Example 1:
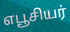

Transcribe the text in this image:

எபூசியர்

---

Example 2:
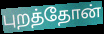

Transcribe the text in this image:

புறத்தோன்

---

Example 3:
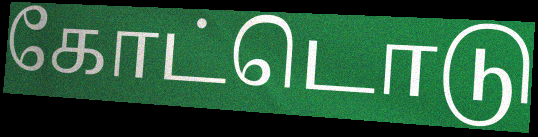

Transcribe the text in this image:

கோட்டொடு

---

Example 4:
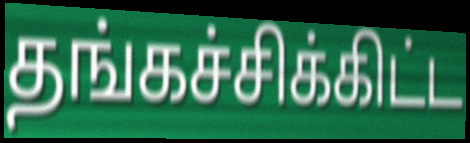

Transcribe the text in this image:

தங்கச்சிக்கிட்ட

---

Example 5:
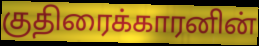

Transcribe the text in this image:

குதிரைக்காரனின்